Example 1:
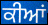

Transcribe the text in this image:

ਕੀਆਂ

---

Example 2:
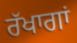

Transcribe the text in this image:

ਰੱਖਾਗਾਂ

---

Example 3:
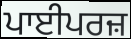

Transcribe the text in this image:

ਪਾਈਪਰਜ਼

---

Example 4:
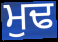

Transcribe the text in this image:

ਮੁਢ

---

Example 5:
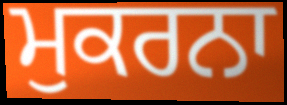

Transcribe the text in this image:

ਮੁਕਰਨਾ